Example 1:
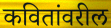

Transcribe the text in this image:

कवितांवरील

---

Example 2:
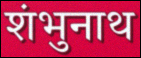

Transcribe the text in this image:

शंभुनाथ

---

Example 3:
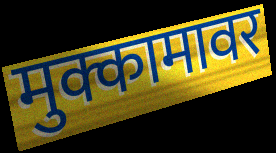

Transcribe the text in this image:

मुक्कामावर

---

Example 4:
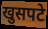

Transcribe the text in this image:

खुसपटे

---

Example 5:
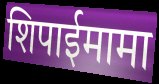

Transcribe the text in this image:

शिपाईमामा